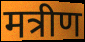
मत्रीण